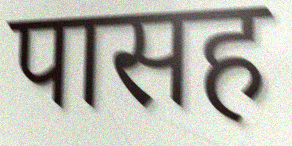
पासह